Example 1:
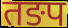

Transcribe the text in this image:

तङप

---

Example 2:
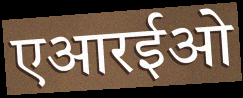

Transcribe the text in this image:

एआरईओ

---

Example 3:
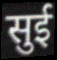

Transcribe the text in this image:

सुई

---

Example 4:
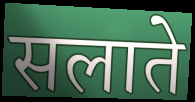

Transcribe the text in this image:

सलाते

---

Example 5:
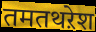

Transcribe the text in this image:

तमतथऱेश